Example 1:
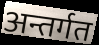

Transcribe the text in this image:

अन्‍तर्गत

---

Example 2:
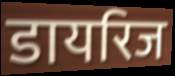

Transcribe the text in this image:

डायरिज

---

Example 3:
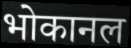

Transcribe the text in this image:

भोकानल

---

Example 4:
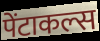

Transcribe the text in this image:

पेंटाकल्स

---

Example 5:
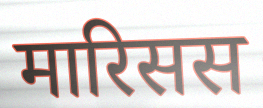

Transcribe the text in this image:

मारिसस